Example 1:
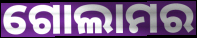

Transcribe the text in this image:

ଗୋଲାମର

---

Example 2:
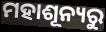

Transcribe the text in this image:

ମହାଶୂନ୍ୟରୁ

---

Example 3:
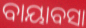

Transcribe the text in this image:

ବାୟାବସା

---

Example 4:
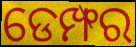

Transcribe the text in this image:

ଡେମ୍ଫର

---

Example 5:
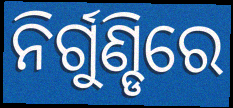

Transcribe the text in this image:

ନିର୍ଗୁଣ୍ଡିରେ